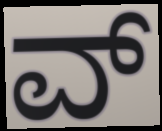
ವ್